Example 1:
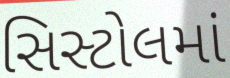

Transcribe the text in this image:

સિસ્ટોલમાં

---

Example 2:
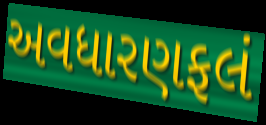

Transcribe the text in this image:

અવધારણફલં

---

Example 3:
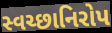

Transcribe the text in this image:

સ્વચ્છાનિરોપ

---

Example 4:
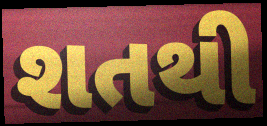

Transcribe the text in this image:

શતથી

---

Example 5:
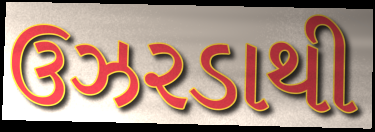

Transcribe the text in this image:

ઉઝરડાથી